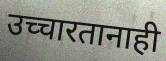
उच्चारतानाही